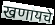
खणायचे